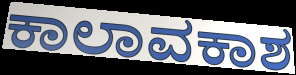
ಕಾಲಾವಕಾಶ